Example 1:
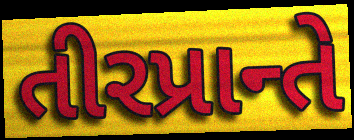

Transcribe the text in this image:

તીરપ્રાન્તે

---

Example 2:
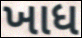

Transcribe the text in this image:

ખાધ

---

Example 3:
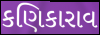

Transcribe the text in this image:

કણિકારાવ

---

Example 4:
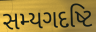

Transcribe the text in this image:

સમ્યગદષ્ટિ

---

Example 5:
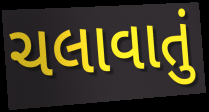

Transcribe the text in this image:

ચલાવાતું